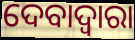
ଦେବାଦ୍ବାରା